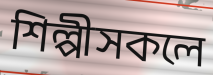
শিল্পীসকলে